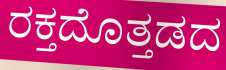
ರಕ್ತದೊತ್ತಡದ